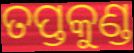
ତପ୍ତକୁଣ୍ଡ